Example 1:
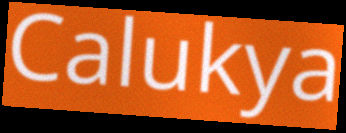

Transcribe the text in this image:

Calukya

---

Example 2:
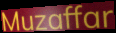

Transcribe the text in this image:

Muzaffar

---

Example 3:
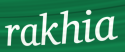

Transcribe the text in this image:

rakhia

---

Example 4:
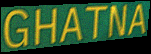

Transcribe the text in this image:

GHATNA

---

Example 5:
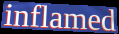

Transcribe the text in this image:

inflamed